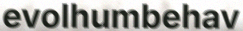
evolhumbehav